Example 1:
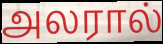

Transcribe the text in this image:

அலரால்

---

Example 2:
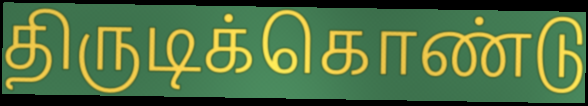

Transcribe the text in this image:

திருடிக்கொண்டு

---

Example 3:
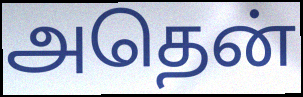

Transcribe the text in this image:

அதென்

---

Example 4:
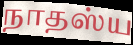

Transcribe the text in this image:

நாதஸ்ய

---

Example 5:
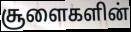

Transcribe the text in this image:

சூளைகளின்